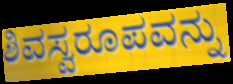
ಶಿವಸ್ವರೂಪವನ್ನು